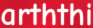
arththi